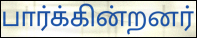
பார்க்கின்றனர்